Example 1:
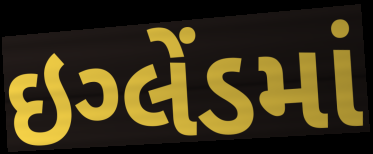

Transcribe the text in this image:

ઇગ્લેંડમાં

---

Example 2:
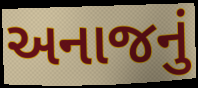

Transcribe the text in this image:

અનાજનું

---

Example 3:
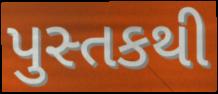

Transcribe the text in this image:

પુસ્તકથી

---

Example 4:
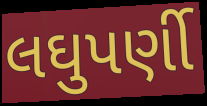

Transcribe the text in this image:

લઘુપર્ણી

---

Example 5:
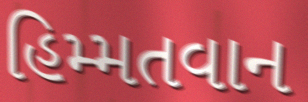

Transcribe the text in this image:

હિમ્મતવાન